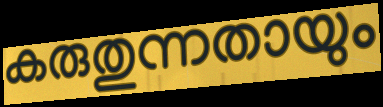
കരുതുന്നതായും